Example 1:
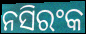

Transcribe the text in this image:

ନସିରଂକ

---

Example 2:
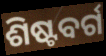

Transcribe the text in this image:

ଶିଷ୍ଟବର୍ଗ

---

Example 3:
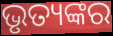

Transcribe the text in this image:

ଭୃତ୍ୟଙ୍କର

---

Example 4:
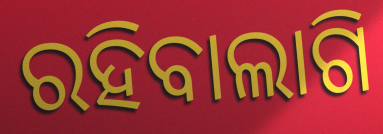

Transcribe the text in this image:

ରହିବାଲାଗି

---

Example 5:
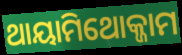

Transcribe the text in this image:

ଥାୟାମିଥୋକ୍ଜାମ